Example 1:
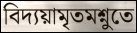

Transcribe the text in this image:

বিদ্যয়ামৃতমশ্নুতে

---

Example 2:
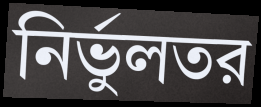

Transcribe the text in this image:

নির্ভুলতর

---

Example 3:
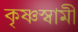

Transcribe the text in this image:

কৃষ্ণস্বামী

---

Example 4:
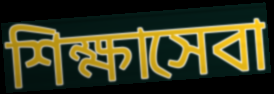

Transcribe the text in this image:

শিক্ষাসেবা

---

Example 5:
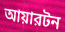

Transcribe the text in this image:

আয়ারটন